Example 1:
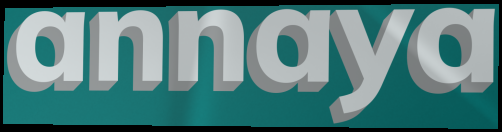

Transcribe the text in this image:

annaya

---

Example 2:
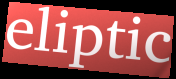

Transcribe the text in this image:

eliptic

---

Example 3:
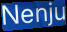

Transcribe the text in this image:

Nenju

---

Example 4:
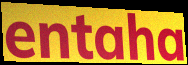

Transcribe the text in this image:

entaha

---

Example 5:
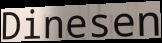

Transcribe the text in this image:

Dinesen